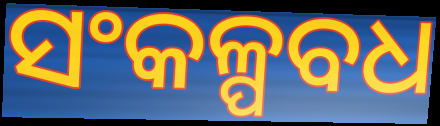
ସଂକଳ୍ପବଧ